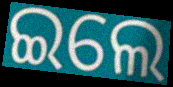
ଇଲେ